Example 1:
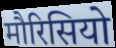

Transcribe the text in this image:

मौरिसियो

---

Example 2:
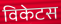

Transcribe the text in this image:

विकेटस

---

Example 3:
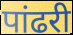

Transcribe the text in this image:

पांढरी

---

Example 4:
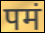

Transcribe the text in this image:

पमं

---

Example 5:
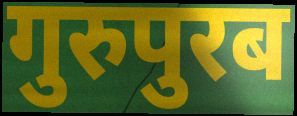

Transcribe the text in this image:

गुरुपुरब